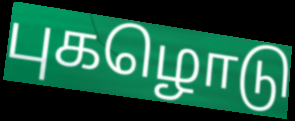
புகழொடு